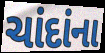
ચાંદાંના